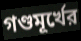
গণ্ডমূর্খের